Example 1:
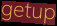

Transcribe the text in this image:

getup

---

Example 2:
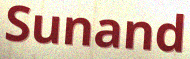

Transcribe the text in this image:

Sunand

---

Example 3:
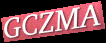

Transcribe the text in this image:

GCZMA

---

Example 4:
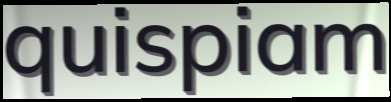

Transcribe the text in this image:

quispiam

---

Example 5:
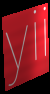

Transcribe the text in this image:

yii